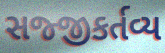
સજ્જીકર્તવ્ય